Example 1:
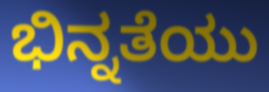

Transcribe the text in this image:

ಭಿನ್ನತೆಯು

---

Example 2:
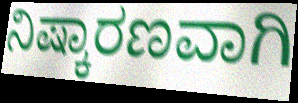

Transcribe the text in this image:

ನಿಷ್ಕಾರಣವಾಗಿ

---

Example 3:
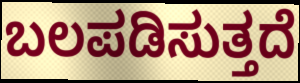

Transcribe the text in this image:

ಬಲಪಡಿಸುತ್ತದೆ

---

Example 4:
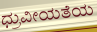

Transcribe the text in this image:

ಧ್ರುವೀಯತೆಯ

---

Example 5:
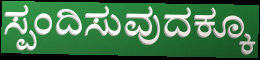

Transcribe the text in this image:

ಸ್ಪಂದಿಸುವುದಕ್ಕೂ